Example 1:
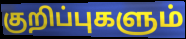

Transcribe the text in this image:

குறிப்புகளும்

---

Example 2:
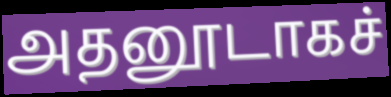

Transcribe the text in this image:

அதனூடாகச்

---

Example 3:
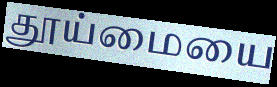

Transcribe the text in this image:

தூய்மையை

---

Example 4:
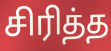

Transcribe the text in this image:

சிரித்த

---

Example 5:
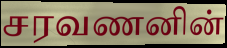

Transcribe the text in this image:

சரவணனின்